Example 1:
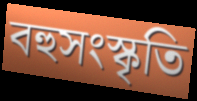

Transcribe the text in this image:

বহুসংস্কৃতি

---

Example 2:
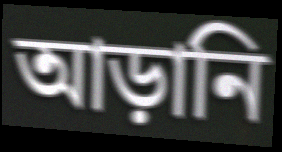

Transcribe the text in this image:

আড়ানি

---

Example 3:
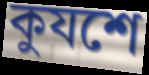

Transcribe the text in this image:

কুযশে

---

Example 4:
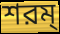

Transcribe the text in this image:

শরম্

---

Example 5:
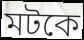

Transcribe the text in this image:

মটকে